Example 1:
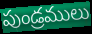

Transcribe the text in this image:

పుండ్రములు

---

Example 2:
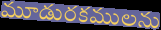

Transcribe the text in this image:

మూడురకములను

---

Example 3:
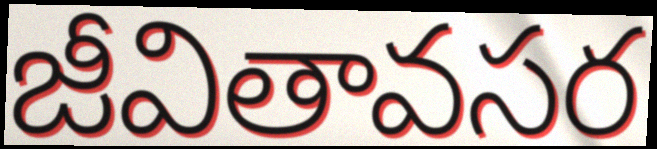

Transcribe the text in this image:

జీవితావసర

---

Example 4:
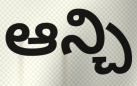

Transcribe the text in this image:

ఆన్చి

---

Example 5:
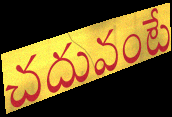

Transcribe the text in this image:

చదువంటే